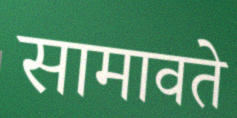
सामावते